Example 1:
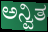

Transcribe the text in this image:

ಅನ್ವಿತ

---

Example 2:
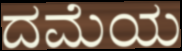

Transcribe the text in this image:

ದಮೆಯ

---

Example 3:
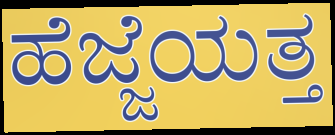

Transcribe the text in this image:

ಹೆಜ್ಜೆಯತ್ತ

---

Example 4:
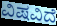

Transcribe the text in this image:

ವಿಷವಿದೆ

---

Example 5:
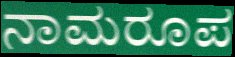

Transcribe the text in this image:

ನಾಮರೂಪ